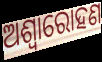
ଅଶ୍ୱାରୋହଣ